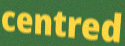
centred